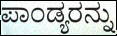
ಪಾಂಡ್ಯರನ್ನು